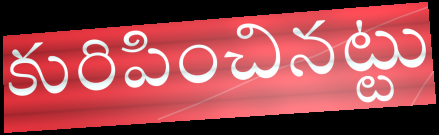
కురిపించినట్టు